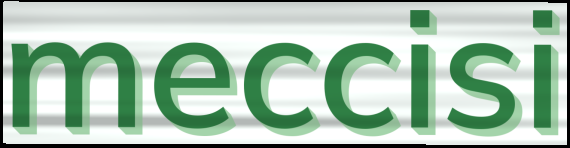
meccisi